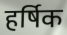
हर्षिक